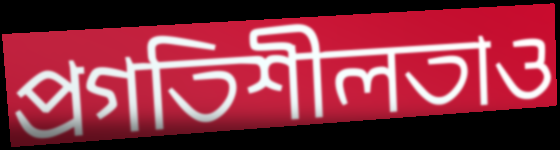
প্রগতিশীলতাও